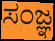
ಸಂಜ್ಞ